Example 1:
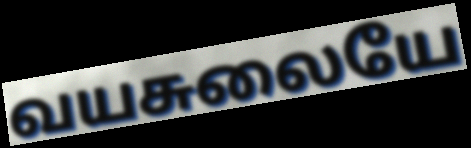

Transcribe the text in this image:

வயசுலையே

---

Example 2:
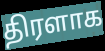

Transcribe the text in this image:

திரளாக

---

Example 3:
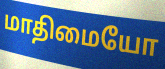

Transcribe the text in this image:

மாதிமையோ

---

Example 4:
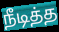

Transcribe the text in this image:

நீடித்த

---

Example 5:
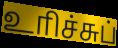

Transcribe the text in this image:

உரிச்சுப்